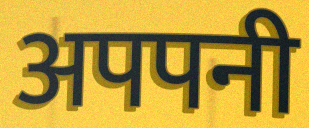
अपपनी